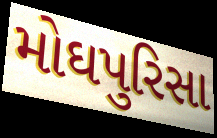
મોઘપુરિસા